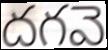
దగవె